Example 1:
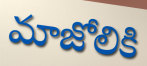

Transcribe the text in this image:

మాజోలికి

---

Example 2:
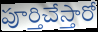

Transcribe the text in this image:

పూర్తిచేస్తారో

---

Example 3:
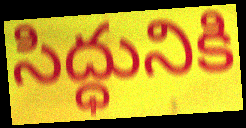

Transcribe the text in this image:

సిద్ధునికి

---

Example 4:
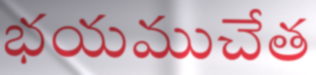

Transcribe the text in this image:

భయముచేత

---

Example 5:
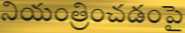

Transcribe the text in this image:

నియంత్రించడంపై